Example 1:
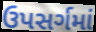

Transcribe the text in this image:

ઉપસર્ગમાં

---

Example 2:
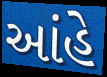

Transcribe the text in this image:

આંહે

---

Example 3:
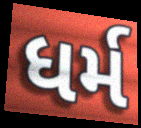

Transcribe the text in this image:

ધર્મ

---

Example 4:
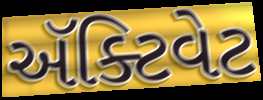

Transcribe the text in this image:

ઍક્ટિવેટ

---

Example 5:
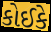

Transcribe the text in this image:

કોઈકે